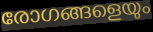
രോഗങ്ങളെയും